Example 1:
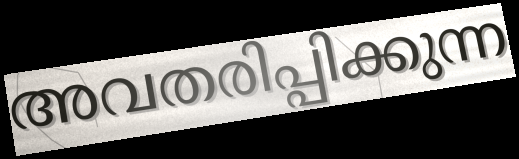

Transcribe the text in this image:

അവതരിപ്പിക്കുന്ന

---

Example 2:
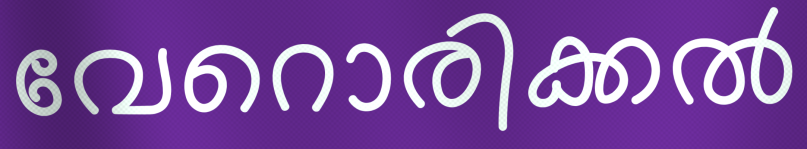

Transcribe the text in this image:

വേറൊരിക്കൽ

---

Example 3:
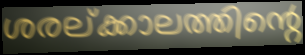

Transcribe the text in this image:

ശരല്ക്കാലത്തിന്റെ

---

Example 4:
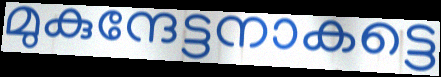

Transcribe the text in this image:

മുകുന്ദേട്ടനാകട്ടെ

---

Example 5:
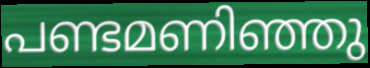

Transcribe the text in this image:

പണ്ടമണിഞ്ഞു